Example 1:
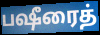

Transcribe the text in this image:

பஷீரைத்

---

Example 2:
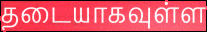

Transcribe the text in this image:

தடையாகவுள்ள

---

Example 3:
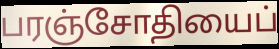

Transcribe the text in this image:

பரஞ்சோதியைப்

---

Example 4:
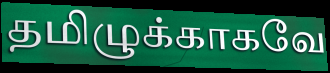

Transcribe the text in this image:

தமிழுக்காகவே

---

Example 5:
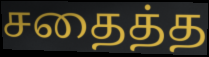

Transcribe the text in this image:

சதைத்த